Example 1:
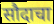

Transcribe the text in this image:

सौदाचा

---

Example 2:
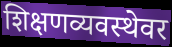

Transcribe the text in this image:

शिक्षणव्यवस्थेवर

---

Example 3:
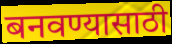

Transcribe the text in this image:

बनवण्यासाठी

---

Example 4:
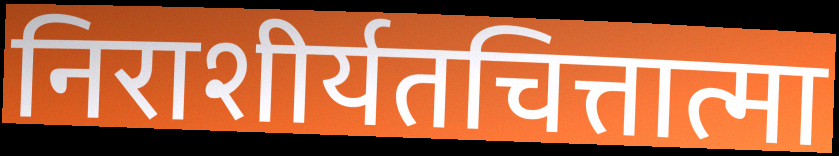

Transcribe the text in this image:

निराशीर्यतचित्तात्मा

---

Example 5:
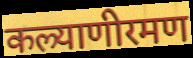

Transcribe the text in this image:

कल्याणीरमण